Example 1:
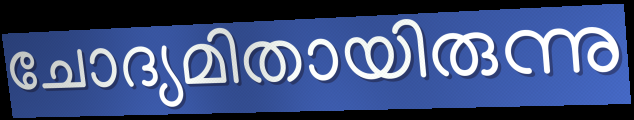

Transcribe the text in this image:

ചോദ്യമിതായിരുന്നു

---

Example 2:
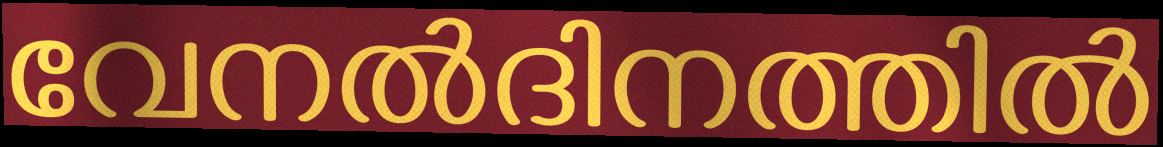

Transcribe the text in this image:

വേനൽദിനത്തിൽ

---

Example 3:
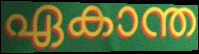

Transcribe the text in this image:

ഏകാന്ത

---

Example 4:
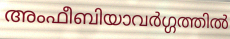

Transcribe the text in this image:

അംഫീബിയാവർഗ്ഗത്തിൽ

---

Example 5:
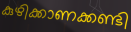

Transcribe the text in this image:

കുഴിക്കാണക്കണ്ടി